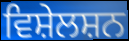
ਵਿਸ਼ੇਲਸ਼ਨ